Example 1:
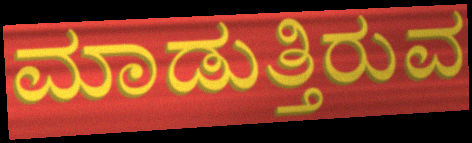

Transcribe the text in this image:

ಮಾಡುತ್ತಿರುವ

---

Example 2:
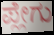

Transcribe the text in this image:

ಪ್ಲೇಗು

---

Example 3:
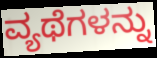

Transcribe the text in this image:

ವ್ಯಥೆಗಳನ್ನು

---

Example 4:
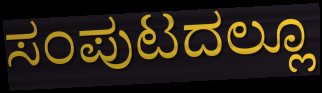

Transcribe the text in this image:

ಸಂಪುಟದಲ್ಲೂ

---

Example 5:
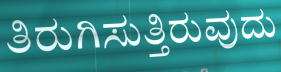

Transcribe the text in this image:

ತಿರುಗಿಸುತ್ತಿರುವುದು